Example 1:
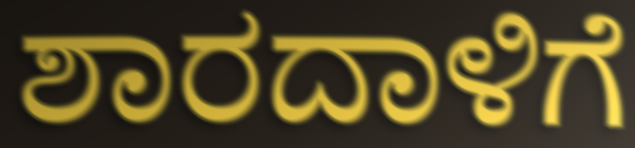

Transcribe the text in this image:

ಶಾರದಾಳಿಗೆ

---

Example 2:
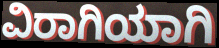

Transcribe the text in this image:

ವಿರಾಗಿಯಾಗಿ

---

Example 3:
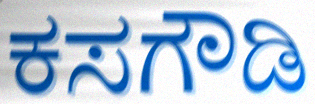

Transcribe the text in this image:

ಕಸಗೌಡಿ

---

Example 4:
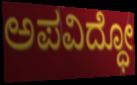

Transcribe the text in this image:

ಅಪವಿದ್ಧೋ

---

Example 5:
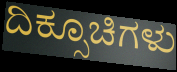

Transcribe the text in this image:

ದಿಕ್ಸೂಚಿಗಳು